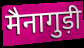
मैनागुड़ी